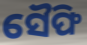
ସୈଫି